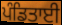
ਪੰਡਿਤਾਈ